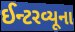
ઈન્ટરવ્યૂના